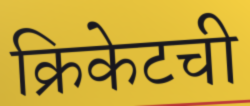
क्रिकेटची